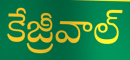
కేజ్రీవాల్